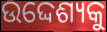
ଉଦ୍ଦେଶ୍ୟକୁ